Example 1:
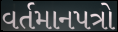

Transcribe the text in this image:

વર્તમાનપત્રો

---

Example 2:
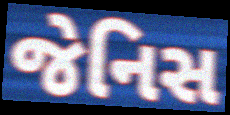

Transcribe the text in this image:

જેનિસ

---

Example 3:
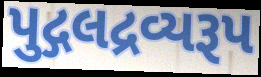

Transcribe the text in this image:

પુદ્ગલદ્રવ્યરૂપ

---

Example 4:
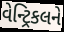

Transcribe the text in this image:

વેન્ટ્રિકલને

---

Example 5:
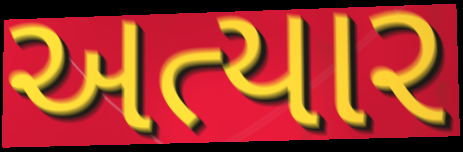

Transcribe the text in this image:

અત્યાર